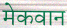
मेकवान